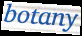
botany